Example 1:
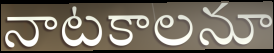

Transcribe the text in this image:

నాటకాలనూ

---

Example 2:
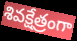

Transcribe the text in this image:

శివక్షేత్రంగా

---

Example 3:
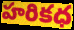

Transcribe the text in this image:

హరికధ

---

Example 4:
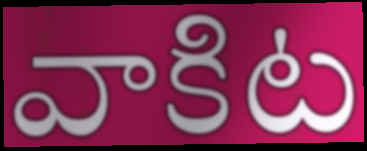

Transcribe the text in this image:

వాకిట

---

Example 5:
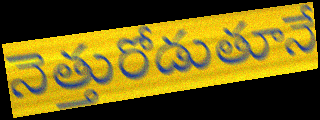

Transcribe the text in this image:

నెత్తురోడుతూనే